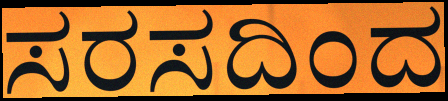
ಸರಸದಿಂದ